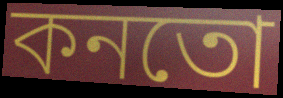
কনতো